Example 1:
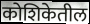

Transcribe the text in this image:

कोशिकेतील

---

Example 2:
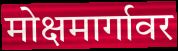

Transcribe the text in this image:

मोक्षमार्गावर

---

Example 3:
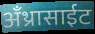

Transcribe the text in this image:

अँथ्रासाईट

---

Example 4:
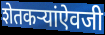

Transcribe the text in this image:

शेतकऱ्यांऐवजी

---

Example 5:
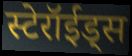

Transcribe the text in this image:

स्टेरॉईड्स